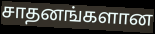
சாதனங்களான